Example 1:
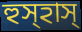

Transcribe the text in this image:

হুস্‌হাস্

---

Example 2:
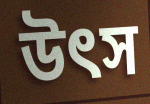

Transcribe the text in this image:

উত্‍স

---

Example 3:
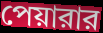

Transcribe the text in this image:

পেয়ারার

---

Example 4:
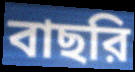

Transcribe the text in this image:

বাছরি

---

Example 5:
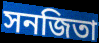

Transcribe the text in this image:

সনজিতা